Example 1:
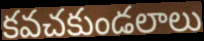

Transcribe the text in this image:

కవచకుండలాలు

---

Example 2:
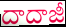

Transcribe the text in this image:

దాదాజీ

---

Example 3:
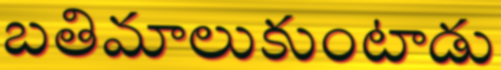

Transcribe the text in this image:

బతిమాలుకుంటాడు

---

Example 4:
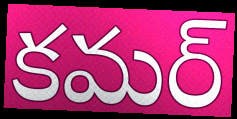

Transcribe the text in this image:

కమర్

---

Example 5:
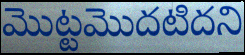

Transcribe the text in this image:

మొట్టమొదటిదని